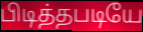
பிடித்தபடியே